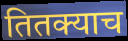
तितक्‍याच